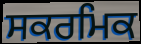
ਸਕਰਮਿਕ